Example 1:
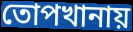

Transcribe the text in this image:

তোপখানায়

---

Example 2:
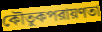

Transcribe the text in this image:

কৌতুকপরায়ণতা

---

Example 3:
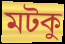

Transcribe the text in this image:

মটকু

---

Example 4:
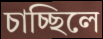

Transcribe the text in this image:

চাচ্ছিলে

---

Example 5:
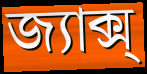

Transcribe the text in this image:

জ্যাক্স্